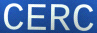
CERC